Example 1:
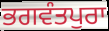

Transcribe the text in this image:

ਭਗਵੰਤਪੁਰਾ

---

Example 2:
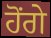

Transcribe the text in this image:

ਹੋਂਗੇ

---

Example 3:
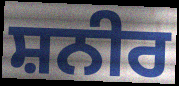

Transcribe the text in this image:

ਸ਼ਨੀਰ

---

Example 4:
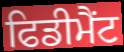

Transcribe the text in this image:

ਫਿਡੀਮੈਂਟ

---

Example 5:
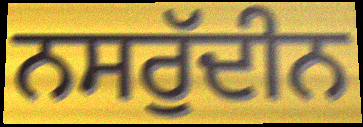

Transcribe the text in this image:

ਨਸਰੁੱਦੀਨ